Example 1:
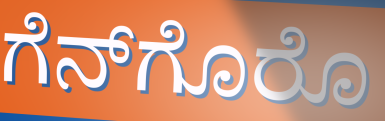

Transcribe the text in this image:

ಗೆನ್‌ಗೊರೊ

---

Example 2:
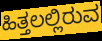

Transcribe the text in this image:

ಹಿತ್ತಲಲ್ಲಿರುವ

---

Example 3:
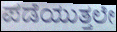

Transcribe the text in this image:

ಪಡೆಯುತ್ತಲೇ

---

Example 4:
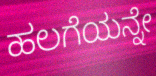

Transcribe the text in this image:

ಹಲಗೆಯನ್ನೇ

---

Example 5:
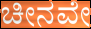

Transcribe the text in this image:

ಚೀನವೇ